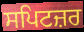
ਸਪਿਟਜ਼ਰ